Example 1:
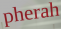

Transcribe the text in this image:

pherah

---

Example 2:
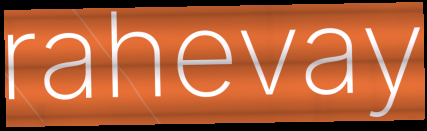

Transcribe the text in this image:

rahevay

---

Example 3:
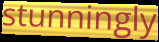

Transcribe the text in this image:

stunningly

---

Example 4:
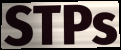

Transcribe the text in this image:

STPs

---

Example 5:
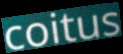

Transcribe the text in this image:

coitus